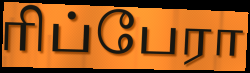
ரிப்பேரா